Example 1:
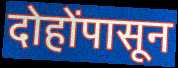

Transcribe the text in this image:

दोहोंपासून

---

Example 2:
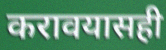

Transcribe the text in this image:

करावयासही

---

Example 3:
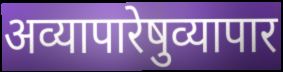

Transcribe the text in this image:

अव्यापारेषुव्यापार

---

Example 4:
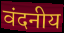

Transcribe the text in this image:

वंदनीय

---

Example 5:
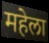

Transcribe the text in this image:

महेला